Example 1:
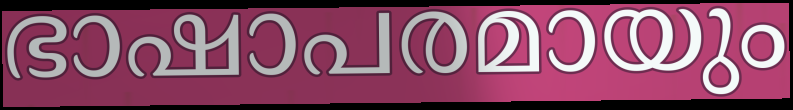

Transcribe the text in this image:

ഭാഷാപരമായും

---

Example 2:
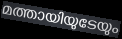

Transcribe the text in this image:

മത്തായിയുടേയും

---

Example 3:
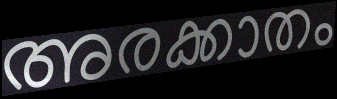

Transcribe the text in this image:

അരക്കാതം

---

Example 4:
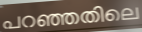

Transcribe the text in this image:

പറഞ്ഞതിലെ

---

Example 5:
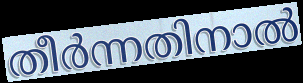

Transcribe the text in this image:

തീർന്നതിനാൽ